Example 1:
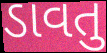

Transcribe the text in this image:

ડાવતુ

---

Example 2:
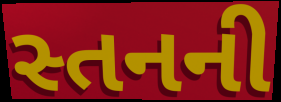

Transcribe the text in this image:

સ્તનની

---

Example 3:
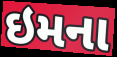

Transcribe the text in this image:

ઇમના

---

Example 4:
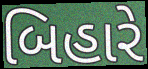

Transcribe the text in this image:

બિહારે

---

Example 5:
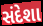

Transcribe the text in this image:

સંદેશા